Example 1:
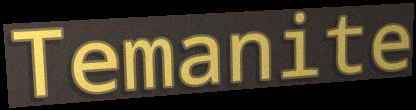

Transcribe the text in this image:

Temanite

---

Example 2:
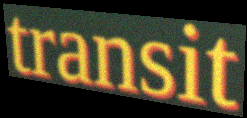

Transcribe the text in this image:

transit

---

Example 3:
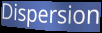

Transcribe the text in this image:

Dispersion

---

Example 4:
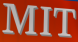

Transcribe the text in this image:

MIT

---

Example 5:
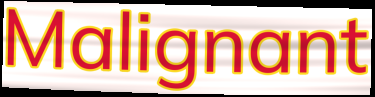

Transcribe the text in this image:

Malignant